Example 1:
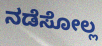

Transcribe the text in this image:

ನಡೆಸೋಲ್ಲ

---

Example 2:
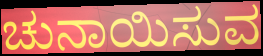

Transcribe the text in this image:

ಚುನಾಯಿಸುವ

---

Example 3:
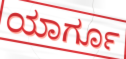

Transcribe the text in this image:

ಯಾರ್ಗೂ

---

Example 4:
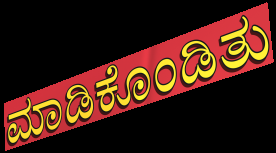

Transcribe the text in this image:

ಮಾಡಿಕೊಂಡಿತು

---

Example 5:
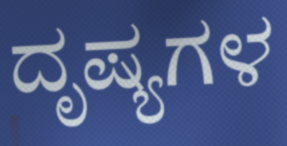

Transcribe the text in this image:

ದೃಷ್ಯಗಳ